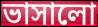
ভাসালো